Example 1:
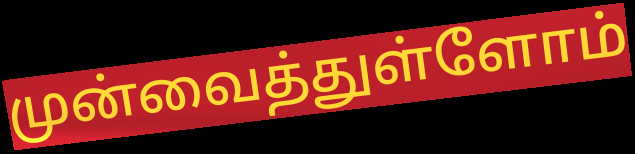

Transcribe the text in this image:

முன்வைத்துள்ளோம்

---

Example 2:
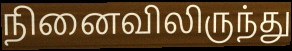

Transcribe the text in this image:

நினைவிலிருந்து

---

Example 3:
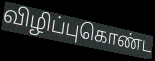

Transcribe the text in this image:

விழிப்புகொண்ட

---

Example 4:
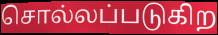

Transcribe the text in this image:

சொல்லப்படுகிற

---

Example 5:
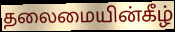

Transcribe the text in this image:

தலைமையின்கீழ்